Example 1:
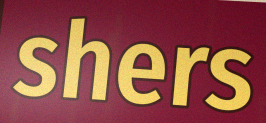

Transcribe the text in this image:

shers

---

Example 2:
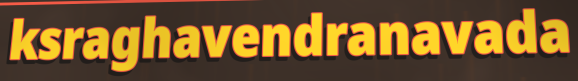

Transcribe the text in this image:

ksraghavendranavada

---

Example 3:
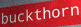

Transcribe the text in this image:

buckthorn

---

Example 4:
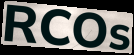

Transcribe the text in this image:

RCOs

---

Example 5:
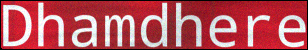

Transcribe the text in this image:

Dhamdhere